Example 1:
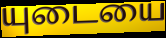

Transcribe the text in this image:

யுடையை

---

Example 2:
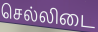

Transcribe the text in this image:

செல்லிடை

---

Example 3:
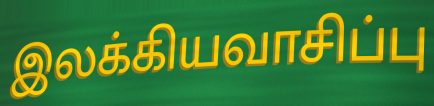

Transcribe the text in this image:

இலக்கியவாசிப்பு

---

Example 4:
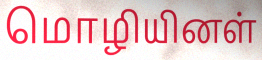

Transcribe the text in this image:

மொழியினள்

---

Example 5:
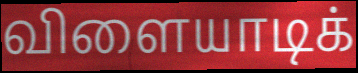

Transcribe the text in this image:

விளையாடிக்